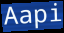
Aapi